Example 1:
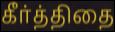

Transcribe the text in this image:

கீர்த்திதை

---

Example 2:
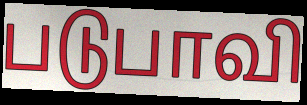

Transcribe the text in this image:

படுபாவி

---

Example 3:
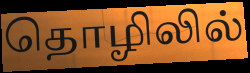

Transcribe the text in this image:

தொழிலில்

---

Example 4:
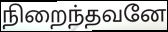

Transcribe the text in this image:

நிறைந்தவனே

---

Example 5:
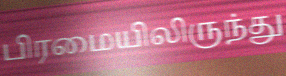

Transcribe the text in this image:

பிரமையிலிருந்து